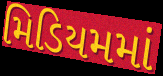
મિડિયમમાં